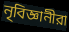
নৃবিজ্ঞানীরা